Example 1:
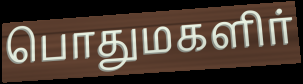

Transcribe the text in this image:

பொதுமகளிர்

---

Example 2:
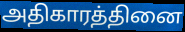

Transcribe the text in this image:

அதிகாரத்தினை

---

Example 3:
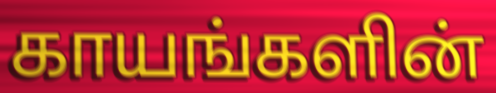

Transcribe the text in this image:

காயங்களின்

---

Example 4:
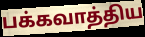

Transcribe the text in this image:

பக்கவாத்திய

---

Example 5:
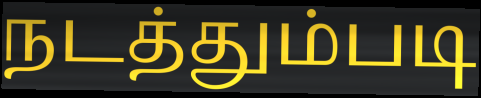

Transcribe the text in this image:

நடத்தும்படி